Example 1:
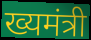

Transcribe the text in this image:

ख्यमंत्री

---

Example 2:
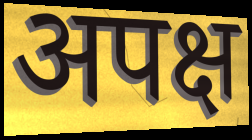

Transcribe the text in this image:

अपक्ष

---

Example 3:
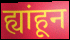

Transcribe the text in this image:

ह्यांहून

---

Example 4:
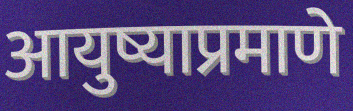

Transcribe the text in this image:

आयुष्याप्रमाणे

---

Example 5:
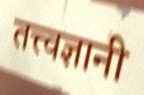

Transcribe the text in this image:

तत्त्वज्ञानी